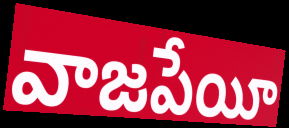
వాజపేయీ